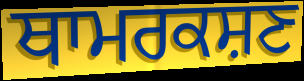
ਥਾਮਰਕਸ਼ਣ